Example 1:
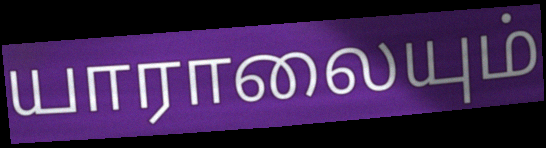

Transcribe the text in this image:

யாராலையும்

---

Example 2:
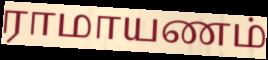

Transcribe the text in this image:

ராமாயணம்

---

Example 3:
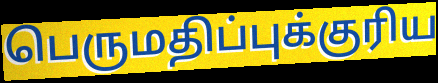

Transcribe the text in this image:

பெருமதிப்புக்குரிய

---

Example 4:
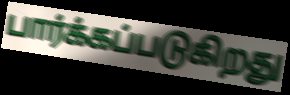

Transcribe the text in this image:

பார்க்கப்படுகிறது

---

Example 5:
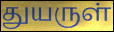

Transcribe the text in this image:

துயருள்